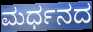
ಮರ್ಧನದ